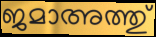
ജമാഅത്തു്